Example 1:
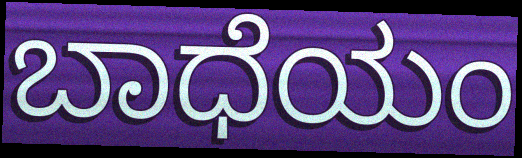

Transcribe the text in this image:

ಬಾಧೆಯಂ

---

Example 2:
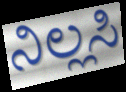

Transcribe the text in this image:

ನಿಲ್ಲಸಿ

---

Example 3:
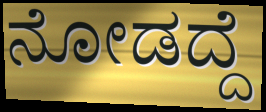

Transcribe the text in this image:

ನೋಡದ್ದೆ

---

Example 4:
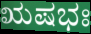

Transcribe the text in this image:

ಋಷಭಃ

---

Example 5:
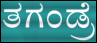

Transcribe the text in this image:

ತಗಂಡ್ರೆ